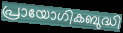
പ്രായോഗികബുദ്ധി